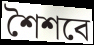
শৈশবে